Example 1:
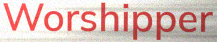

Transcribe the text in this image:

Worshipper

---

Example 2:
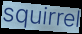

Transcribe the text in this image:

squirrel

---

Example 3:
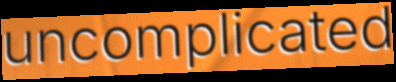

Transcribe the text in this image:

uncomplicated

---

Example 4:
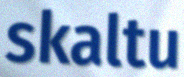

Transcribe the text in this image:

skaltu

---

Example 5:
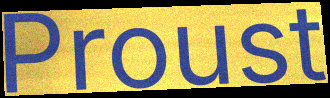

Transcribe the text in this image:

Proust